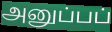
அனுப்பப்